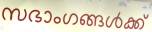
സഭാംഗങ്ങൾക്ക്